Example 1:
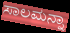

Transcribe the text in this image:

ಸಾಲಮನ್ನಾ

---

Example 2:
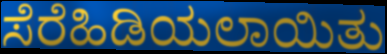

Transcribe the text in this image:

ಸೆರೆಹಿಡಿಯಲಾಯಿತು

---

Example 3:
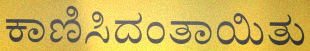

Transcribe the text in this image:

ಕಾಣಿಸಿದಂತಾಯಿತು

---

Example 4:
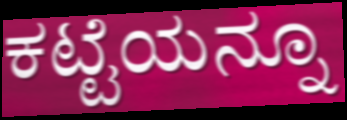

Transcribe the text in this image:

ಕಟ್ಟೆಯನ್ನೂ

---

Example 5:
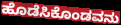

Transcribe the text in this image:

ಹೊಡೆಸಿಕೊಂಡವನು